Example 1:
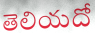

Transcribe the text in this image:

తెలియదో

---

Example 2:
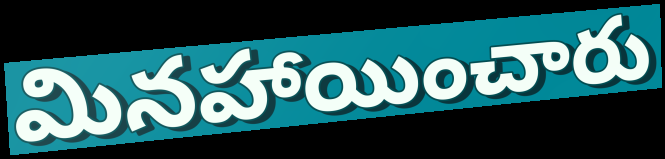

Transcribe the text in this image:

మినహాయించారు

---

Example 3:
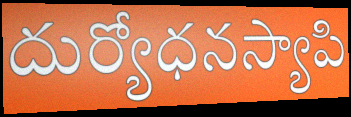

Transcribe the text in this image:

దుర్యోధనస్యాపి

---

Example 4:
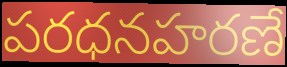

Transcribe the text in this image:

పరధనహరణే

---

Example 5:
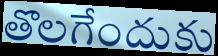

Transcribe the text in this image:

తొలగేందుకు